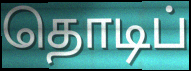
தொடிப்